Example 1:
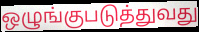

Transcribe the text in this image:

ஒழுங்குபடுத்துவது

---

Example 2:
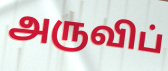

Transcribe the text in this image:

அருவிப்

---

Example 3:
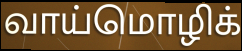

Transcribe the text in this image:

வாய்மொழிக்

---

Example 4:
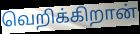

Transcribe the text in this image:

வெறிக்கிறான்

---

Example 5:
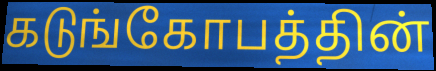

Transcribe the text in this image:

கடுங்கோபத்தின்